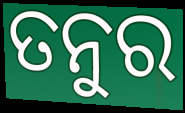
ତନୁର